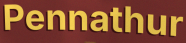
Pennathur